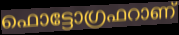
ഫൊട്ടോഗ്രഫറാണ്